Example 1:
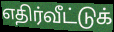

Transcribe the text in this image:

எதிர்வீட்டுக்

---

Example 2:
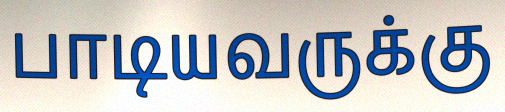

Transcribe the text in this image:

பாடியவருக்கு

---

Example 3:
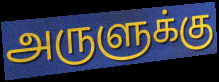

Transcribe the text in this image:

அருளுக்கு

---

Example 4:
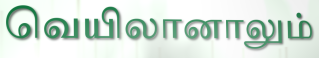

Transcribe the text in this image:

வெயிலானாலும்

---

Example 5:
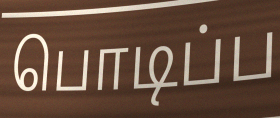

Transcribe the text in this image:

பொடிப்ப